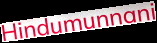
Hindumunnani